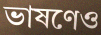
ভাষণেও